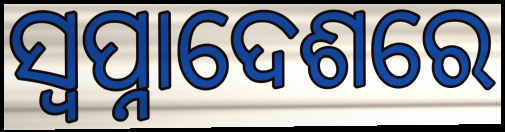
ସ୍ଵପ୍ନାଦେଶରେ